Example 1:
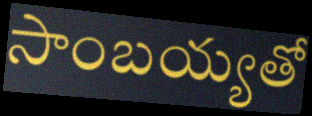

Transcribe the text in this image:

సాంబయ్యతో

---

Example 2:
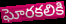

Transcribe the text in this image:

ఘోరకలికి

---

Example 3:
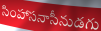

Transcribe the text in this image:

సింహాసనాసీనుడగు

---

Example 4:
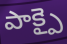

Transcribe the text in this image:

పాక్పై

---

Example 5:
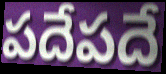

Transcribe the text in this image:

పదేపదే